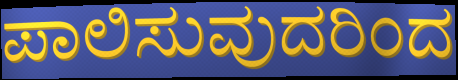
ಪಾಲಿಸುವುದರಿಂದ